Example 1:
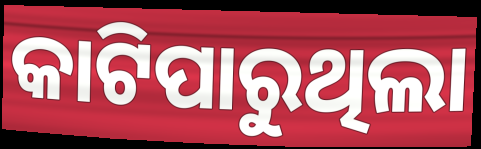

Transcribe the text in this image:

କାଟିପାରୁଥିଲା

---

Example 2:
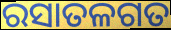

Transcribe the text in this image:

ରସାତଳଗତ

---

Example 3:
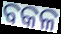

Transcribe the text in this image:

ବକଳ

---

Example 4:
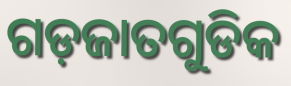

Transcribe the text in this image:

ଗଡ଼ଜାତଗୁଡିକ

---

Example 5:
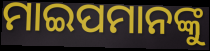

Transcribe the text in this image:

ମାଇପମାନଙ୍କୁ